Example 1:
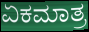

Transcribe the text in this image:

ಏಕಮಾತ್ರ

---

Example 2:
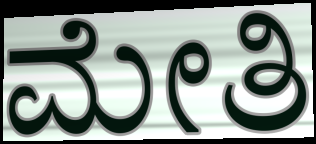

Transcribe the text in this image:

ಮೇತಿ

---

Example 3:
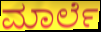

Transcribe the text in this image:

ಮಾರ್ಲೆ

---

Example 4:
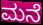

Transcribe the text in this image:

ಮನೆ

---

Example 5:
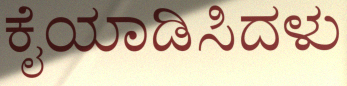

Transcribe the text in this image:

ಕೈಯಾಡಿಸಿದಳು